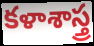
కళాశాస్త్ర